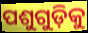
ପଶୁଗୁଡ଼ିକୁ